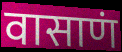
वासाणं